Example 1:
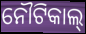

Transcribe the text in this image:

ନୌଟିକାଲ୍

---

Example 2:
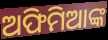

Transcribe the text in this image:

ଅଫିମିଆଙ୍କ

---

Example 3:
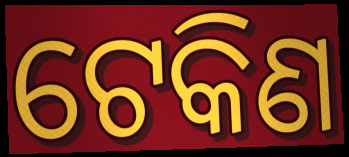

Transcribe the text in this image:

ଟେକିଣ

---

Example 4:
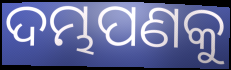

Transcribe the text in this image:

ଦମ୍ଭପଣକୁ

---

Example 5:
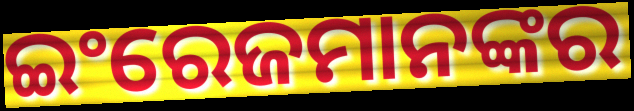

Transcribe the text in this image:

ଇଂରେଜମାନଙ୍କର